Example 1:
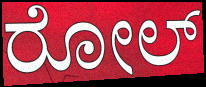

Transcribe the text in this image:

ರೋಲ್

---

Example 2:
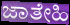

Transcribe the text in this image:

ಜಾತೇಹಿ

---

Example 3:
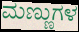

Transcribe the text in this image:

ಮಣ್ಣುಗಳ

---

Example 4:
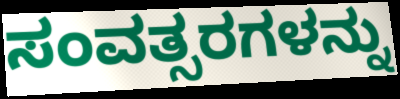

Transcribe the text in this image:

ಸಂವತ್ಸರಗಳನ್ನು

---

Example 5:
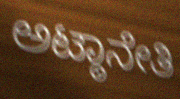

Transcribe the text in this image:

ಅಟ್ಠಾನೇತಿ